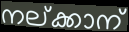
നല്ക്കാന്